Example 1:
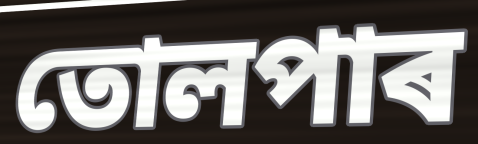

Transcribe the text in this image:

তোলপাৰ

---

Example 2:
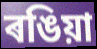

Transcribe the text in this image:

ৰঙিয়া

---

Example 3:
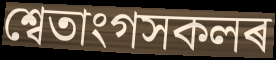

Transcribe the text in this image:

শ্বেতাংগসকলৰ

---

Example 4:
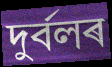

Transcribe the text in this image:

দুৰ্বলৰ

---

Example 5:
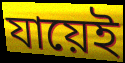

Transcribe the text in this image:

যায়েই